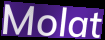
Molat